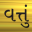
વત્તું